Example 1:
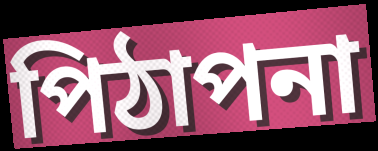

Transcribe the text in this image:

পিঠাপনা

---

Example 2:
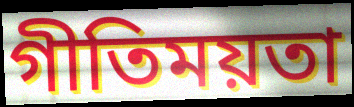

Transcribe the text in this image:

গীতিময়তা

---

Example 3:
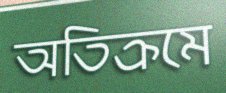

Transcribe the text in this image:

অতিক্ৰমে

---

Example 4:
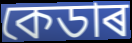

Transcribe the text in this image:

কেডাৰ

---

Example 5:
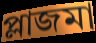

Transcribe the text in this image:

প্লাজমা